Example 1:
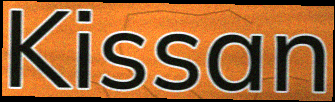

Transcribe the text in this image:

Kissan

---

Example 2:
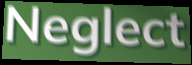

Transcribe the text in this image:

Neglect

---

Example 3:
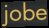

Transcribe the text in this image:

jobe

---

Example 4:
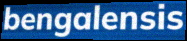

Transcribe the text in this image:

bengalensis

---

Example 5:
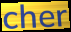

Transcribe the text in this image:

cher